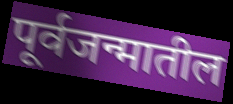
पूर्वजन्मातील